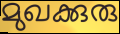
മുഖക്കുരു